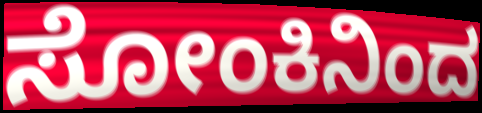
ಸೋಂಕಿನಿಂದ